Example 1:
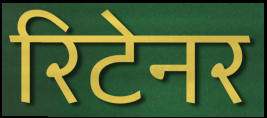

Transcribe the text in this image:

रिटेनर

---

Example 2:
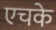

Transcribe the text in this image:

एचके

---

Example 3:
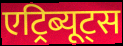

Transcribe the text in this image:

एट्रिब्यूट्स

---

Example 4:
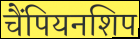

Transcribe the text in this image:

चैंपियनशिप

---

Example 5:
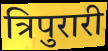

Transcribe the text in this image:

त्रिपुरारी